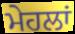
ਮੇਹਲਾਂ